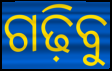
ଗଢ଼ିବୁ